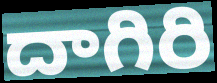
దాగిరి